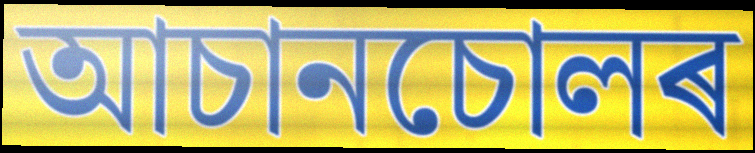
আচানচোলৰ